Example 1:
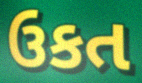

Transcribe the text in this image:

ઉકત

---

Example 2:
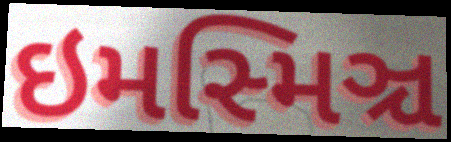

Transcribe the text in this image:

ઇમસ્મિઞ્ચ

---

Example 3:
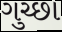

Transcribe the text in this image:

ગુચ્છા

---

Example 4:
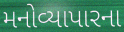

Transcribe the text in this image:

મનોવ્યાપારના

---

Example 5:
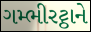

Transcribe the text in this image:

ગમ્ભીરટ્ઠાને